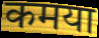
कमया